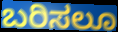
ಬರಿಸಲೂ